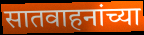
सातवाहनांच्या